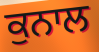
ਕੁਨਾਲ